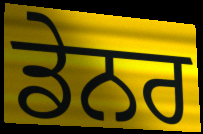
ਡੇਨਰ